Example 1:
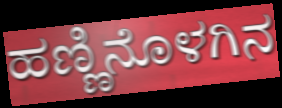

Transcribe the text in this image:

ಹಣ್ಣಿನೊಳಗಿನ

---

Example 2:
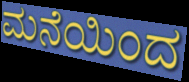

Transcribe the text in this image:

ಮನೆಯಿಂದ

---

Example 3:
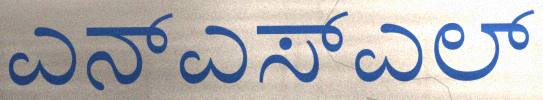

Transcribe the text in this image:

ಎನ್ಎಸ್ಎಲ್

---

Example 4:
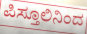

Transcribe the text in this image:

ಪಿಸ್ತೂಲಿನಿಂದ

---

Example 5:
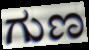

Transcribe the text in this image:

ಗುಣ